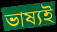
ভাষ্যই